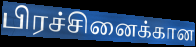
பிரச்சினைக்கான